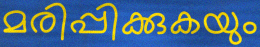
മരിപ്പിക്കുകയും